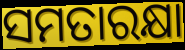
ସମତାରକ୍ଷା